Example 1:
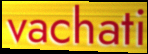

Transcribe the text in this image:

vachati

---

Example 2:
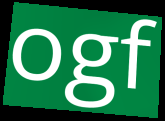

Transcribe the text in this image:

ogf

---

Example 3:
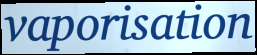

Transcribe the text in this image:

vaporisation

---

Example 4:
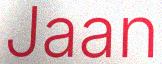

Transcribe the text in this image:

Jaan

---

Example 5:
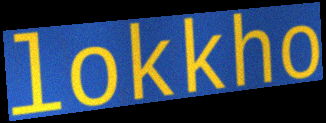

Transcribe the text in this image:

lokkho